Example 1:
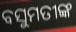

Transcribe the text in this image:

ବସୁମତୀଙ୍କ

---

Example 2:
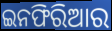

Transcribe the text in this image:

ଇନଫିରିଆର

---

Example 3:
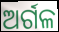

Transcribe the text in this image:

ଅର୍ଗଳ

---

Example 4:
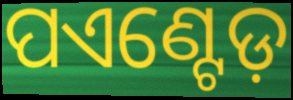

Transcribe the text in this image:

ପଏଣ୍ଟେଡ଼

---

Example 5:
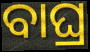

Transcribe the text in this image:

ବାଘ୍ର